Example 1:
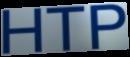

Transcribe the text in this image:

HTP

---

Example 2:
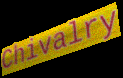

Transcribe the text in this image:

Chivalry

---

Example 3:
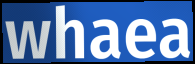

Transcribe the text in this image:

whaea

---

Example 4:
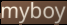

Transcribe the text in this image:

myboy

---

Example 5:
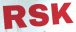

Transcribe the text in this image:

RSK